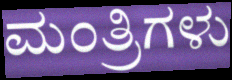
ಮಂತ್ರಿಗಳು